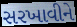
સરખાવીને